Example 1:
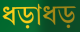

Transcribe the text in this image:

ধড়াধড়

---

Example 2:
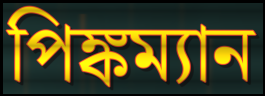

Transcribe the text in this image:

পিঙ্কম্যান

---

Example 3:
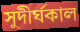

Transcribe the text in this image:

সুদীর্ঘকাল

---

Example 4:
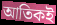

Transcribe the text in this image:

আতিকই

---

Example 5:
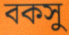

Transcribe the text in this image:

বকসু